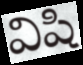
విషి